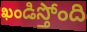
ఖండిస్తోంది